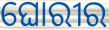
ଘୋରୀର